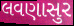
લવણાસુર